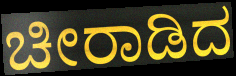
ಚೀರಾಡಿದ